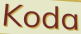
Koda